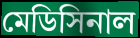
মেডিসিনাল